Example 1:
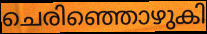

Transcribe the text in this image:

ചെരിഞ്ഞൊഴുകി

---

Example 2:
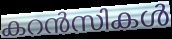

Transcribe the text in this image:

കറൻസികൾ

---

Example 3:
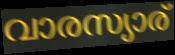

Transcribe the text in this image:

വാരസ്യാര്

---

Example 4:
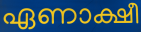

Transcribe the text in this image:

ഏണാക്ഷീ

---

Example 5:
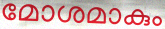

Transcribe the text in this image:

മോശമാകും